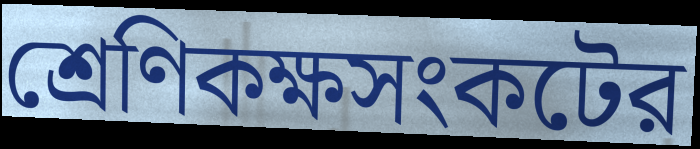
শ্রেণিকক্ষসংকটের